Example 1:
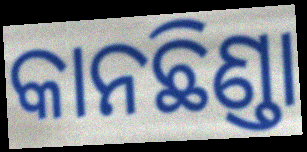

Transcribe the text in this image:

କାନଛିଣ୍ଡା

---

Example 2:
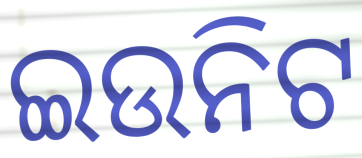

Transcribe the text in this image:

ଇଉନିଟ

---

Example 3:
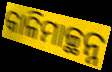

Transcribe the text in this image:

କାଳିମାଚ୍ଛନ୍ନ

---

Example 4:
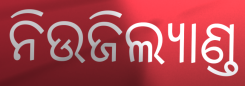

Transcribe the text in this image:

ନିଉଜିଲ୍ୟାଣ୍ଡ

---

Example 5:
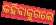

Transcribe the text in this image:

କହିବାକୁଗଲେ